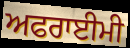
ਅਫਰਾਈਮੀ